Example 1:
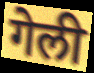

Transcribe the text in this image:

गेली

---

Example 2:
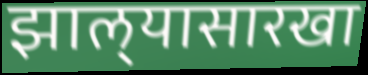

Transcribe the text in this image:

झाल्यासारखा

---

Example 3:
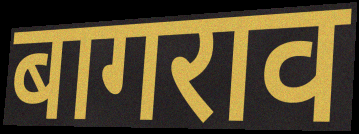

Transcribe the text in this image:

बागराव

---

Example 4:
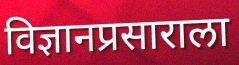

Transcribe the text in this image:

विज्ञानप्रसाराला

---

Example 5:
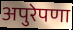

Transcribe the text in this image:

अपुरेपणा